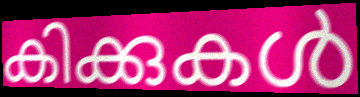
കിക്കുകൾ